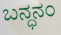
ಬನ್ಧನಂ